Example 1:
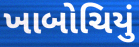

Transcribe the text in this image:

ખાબોચિયું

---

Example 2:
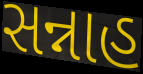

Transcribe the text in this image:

સન્નાહ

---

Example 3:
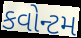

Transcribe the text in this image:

કવોન્ટમ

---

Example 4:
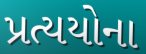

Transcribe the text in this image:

પ્રત્યયોના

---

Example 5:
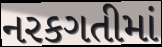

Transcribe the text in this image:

નરકગતીમાં